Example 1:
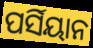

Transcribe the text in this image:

ପର୍ସିୟାନ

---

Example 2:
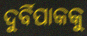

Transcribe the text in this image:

ଦୁର୍ବିପାକକୁ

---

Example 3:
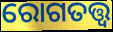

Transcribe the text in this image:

ରୋଗତତ୍ତ୍ୱ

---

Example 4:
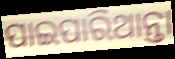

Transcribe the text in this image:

ପାଇପାରିଥାନ୍ତା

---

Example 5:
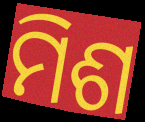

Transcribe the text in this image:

ମିଶ